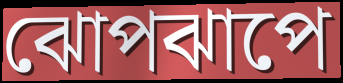
ঝোপঝাপে